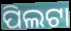
ପିଲଟା